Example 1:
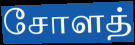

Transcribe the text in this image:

சோளத்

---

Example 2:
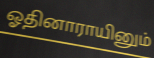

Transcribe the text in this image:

ஓதினாராயினும்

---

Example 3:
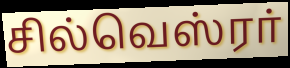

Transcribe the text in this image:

சில்வெஸ்ரர்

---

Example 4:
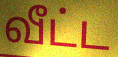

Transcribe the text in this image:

வீட்ட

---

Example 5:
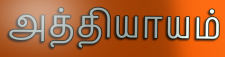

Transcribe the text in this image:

அத்தியாயம்